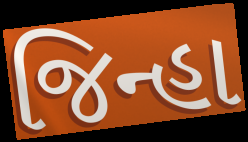
જિન્હા